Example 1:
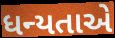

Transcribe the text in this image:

ધન્યતાએ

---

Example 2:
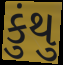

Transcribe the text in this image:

કુંથુ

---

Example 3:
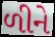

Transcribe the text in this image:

ળીને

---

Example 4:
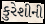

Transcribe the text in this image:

કુરેશીની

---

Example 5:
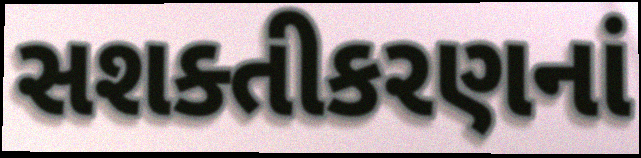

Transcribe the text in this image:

સશક્તીકરણનાં